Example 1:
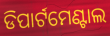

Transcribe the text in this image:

ଡିପାର୍ଟମେଣ୍ଟାଲ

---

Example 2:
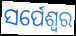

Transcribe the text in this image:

ସର୍ପେଶ୍ଵର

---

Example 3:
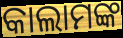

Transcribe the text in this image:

କାଲାମଙ୍କ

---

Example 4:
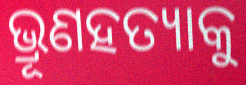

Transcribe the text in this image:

ଭ୍ରୂଣହତ୍ୟାକୁ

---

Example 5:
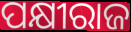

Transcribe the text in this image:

ପକ୍ଷୀରାଜ